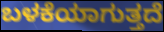
ಬಳಕೆಯಾಗುತ್ತದೆ